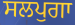
ਸਲਪੁਗਾ